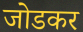
जोडकर